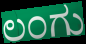
ಲಂಗು